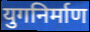
युगनिर्माण